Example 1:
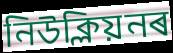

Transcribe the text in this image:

নিউক্লিয়নৰ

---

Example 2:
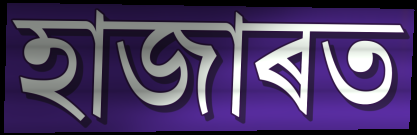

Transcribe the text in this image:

হাজাৰত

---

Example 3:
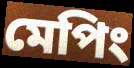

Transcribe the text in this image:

মেপিং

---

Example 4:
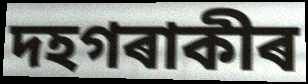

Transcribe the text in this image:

দহগৰাকীৰ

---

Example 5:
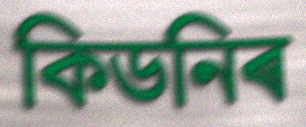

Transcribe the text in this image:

কিডনিৰ